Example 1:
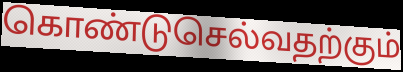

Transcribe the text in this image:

கொண்டுசெல்வதற்கும்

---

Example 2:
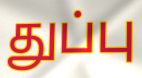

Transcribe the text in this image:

துப்பு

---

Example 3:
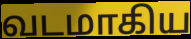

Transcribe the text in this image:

வடமாகிய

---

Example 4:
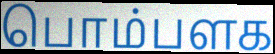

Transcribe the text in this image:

பொம்பளக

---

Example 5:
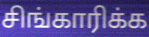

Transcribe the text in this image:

சிங்காரிக்க